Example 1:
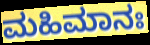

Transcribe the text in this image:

ಮಹಿಮಾನಃ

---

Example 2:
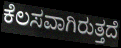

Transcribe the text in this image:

ಕೆಲಸವಾಗಿರುತ್ತದೆ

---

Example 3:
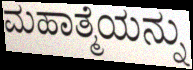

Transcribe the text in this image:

ಮಹಾತ್ಮೆಯನ್ನು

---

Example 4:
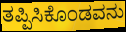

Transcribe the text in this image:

ತಪ್ಪಿಸಿಕೊಂಡವನು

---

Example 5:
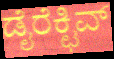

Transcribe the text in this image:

ಡೈರೆಕ್ಟಿವ್